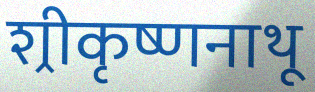
श्रीकृष्णनाथू